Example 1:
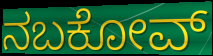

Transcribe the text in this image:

ನಬಕೋವ್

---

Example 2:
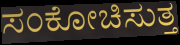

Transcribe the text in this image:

ಸಂಕೋಚಿಸುತ್ತ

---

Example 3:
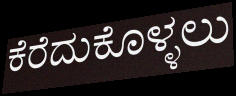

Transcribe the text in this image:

ಕೆರೆದುಕೊಳ್ಳಲು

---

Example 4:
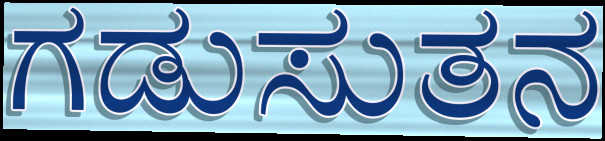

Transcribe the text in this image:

ಗಡುಸುತನ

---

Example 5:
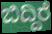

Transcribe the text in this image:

ಬಿದ್ದಿರೆ